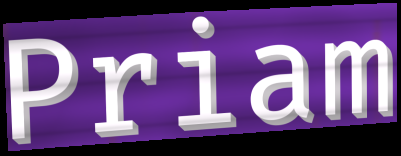
Priam